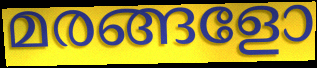
മരങ്ങളോ